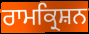
ਰਾਮਕ੍ਰਿਸ਼ਨ